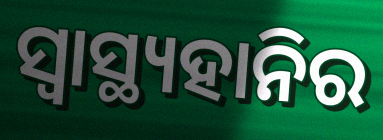
ସ୍ଵାସ୍ଥ୍ୟହାନିର